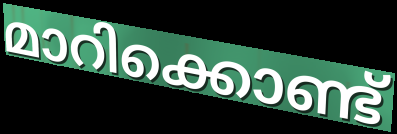
മാറിക്കൊണ്ട്